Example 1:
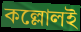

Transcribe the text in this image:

কল্লোলই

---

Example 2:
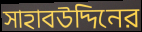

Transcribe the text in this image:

সাহাবউদ্দিনের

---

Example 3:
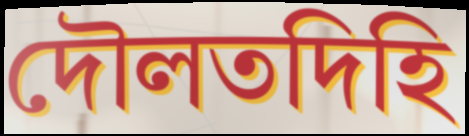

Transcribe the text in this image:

দৌলতদিহি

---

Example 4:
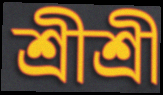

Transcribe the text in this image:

শ্রীশ্রী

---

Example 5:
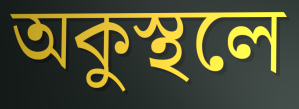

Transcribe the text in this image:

অকুস্থলে